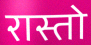
रास्तो